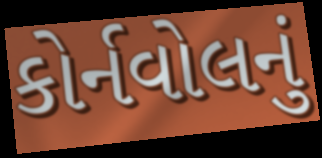
કોર્નવોલનું